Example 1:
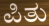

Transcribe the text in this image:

ಪಿತು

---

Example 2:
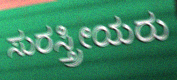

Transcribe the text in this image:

ಸುರಸ್ತ್ರೀಯರು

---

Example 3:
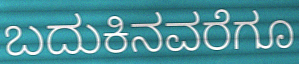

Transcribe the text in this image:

ಬದುಕಿನವರೆಗೂ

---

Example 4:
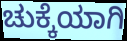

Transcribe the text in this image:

ಚುಕ್ಕೆಯಾಗಿ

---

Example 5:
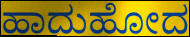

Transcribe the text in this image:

ಹಾದುಹೋದ